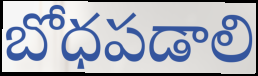
బోధపడాలి